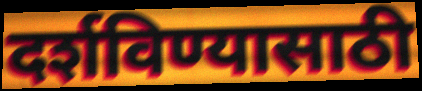
दर्शविण्यासाठी